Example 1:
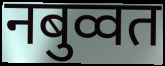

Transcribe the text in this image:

नबुव्वत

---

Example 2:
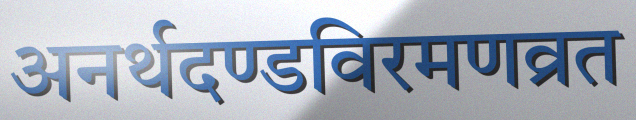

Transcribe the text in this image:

अनर्थदण्डविरमणव्रत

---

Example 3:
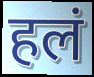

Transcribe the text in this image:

हलं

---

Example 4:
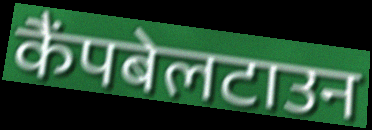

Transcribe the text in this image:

कैंपबेलटाउन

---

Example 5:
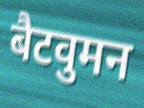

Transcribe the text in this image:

बैटवुमन